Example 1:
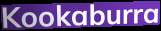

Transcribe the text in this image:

Kookaburra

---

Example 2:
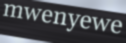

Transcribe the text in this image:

mwenyewe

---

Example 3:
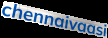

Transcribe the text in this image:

chennaivaasi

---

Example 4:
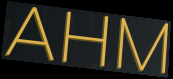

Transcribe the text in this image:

AHM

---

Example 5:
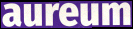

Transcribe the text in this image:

aureum